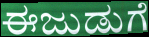
ಈಜುಡುಗೆ